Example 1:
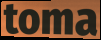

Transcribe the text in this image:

toma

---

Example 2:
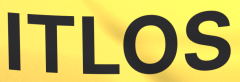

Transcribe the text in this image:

ITLOS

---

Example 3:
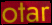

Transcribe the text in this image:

otar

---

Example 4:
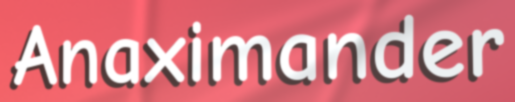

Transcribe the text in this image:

Anaximander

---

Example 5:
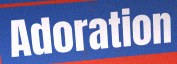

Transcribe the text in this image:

Adoration